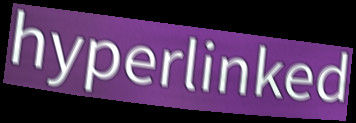
hyperlinked